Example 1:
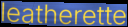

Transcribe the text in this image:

leatherette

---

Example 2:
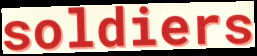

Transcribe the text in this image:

soldiers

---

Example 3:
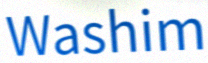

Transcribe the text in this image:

Washim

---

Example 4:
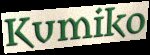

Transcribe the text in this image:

Kumiko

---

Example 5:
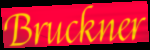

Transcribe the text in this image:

Bruckner